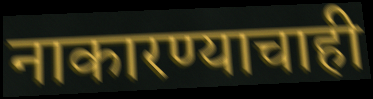
नाकारण्याचाही